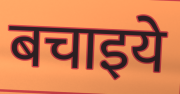
बचाइये